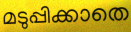
മടുപ്പിക്കാതെ